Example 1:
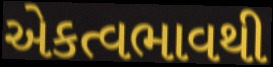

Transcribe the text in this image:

એકત્વભાવથી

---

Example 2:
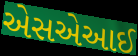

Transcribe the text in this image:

એસએઆઈ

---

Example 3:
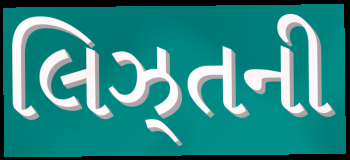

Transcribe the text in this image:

લિઝ્તની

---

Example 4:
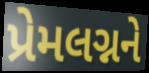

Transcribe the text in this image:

પ્રેમલગ્નને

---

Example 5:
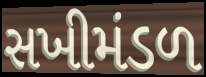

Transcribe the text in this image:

સખીમંડળ